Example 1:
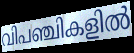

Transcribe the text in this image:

വിപഞ്ചികളിൽ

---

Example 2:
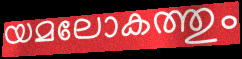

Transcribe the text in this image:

യമലോകത്തും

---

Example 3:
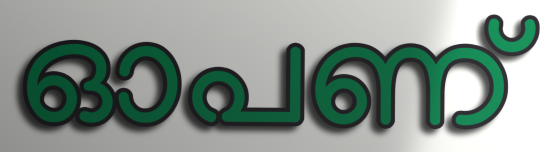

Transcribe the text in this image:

ഓപണ്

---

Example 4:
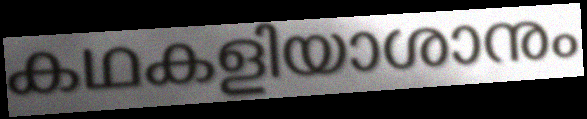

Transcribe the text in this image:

കഥകളിയാശാനും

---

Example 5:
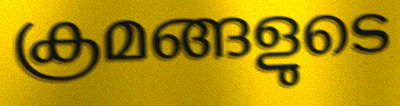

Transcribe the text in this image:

ക്രമങ്ങളുടെ